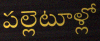
పల్లెటూళ్లో